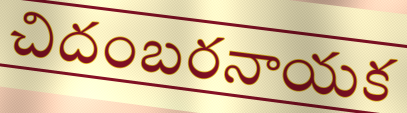
చిదంబరనాయక